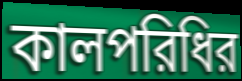
কালপরিধির